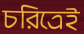
চরিত্রেই